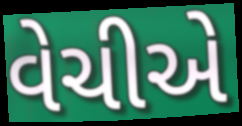
વેચીએ